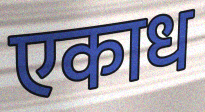
एकाध